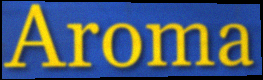
Aroma